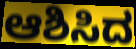
ಆಶಿಸಿದ